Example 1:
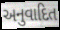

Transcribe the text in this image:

અનુવાદિત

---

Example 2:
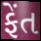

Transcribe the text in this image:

ફેંત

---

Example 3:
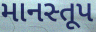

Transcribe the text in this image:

માનસ્તૂપ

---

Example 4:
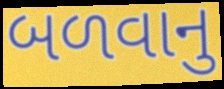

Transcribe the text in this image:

બળવાનુ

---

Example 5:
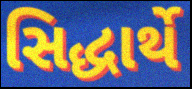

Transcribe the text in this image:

સિદ્ધાર્થે